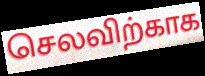
செலவிற்காக